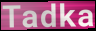
Tadka